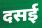
दसई